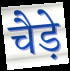
चैड़े